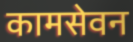
कामसेवन